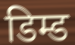
डिम्ड